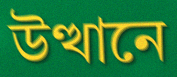
উত্থানে